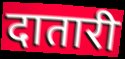
दातारी